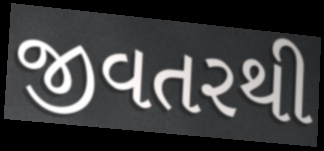
જીવતરથી